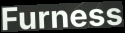
Furness